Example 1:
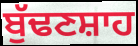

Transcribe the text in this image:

ਬੁੱਢਣਸ਼ਾਹ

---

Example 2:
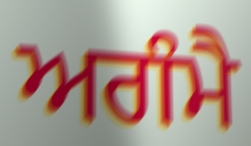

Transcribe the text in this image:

ਅਗੰਮੈ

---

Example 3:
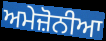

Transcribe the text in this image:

ਅਮੇਜ਼ੋਨੀਆ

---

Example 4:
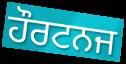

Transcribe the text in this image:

ਹੌਰਟਨਜ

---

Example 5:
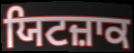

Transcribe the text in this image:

ਯਿਟਜ਼ਾਕ